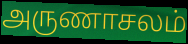
அருணாசலம்